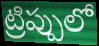
ట్రిప్పులో